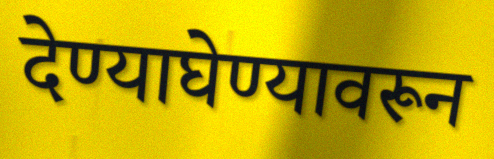
देण्याघेण्यावरून